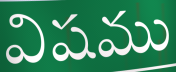
విషము